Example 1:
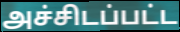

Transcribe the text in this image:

அச்சிடப்பட்ட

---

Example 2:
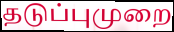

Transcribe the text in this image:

தடுப்புமுறை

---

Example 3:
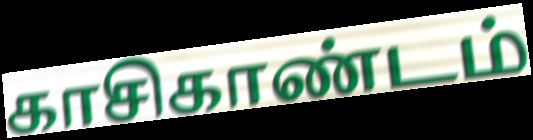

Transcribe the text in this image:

காசிகாண்டம்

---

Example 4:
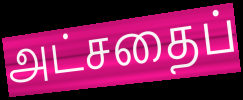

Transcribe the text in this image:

அட்சதைப்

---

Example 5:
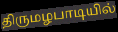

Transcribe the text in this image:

திருமழபாடியில்